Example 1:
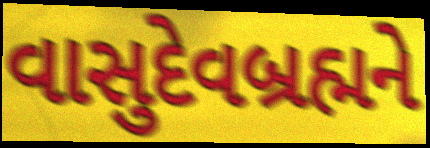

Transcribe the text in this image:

વાસુદેવબ્રહ્મને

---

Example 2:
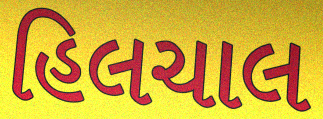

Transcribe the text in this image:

હિલચાલ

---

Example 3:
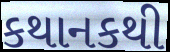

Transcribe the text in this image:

કથાનકથી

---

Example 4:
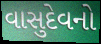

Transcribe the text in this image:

વાસુદેવનો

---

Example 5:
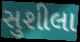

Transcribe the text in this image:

સુશીલા